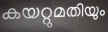
കയറ്റുമതിയും